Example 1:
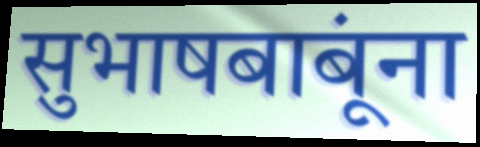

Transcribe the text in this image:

सुभाषबाबूंना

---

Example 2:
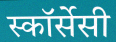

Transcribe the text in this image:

स्कॉर्सेसी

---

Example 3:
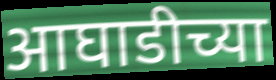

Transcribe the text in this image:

आघाडीच्या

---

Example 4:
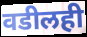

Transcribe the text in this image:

वडीलही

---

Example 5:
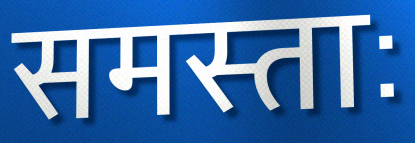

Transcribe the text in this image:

समस्ताः